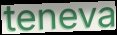
teneva